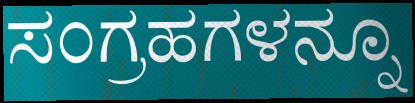
ಸಂಗ್ರಹಗಳನ್ನೂ